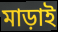
মাড়াই